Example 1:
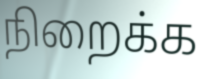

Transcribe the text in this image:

நிறைக்க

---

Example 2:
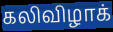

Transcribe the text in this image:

கலிவிழாக்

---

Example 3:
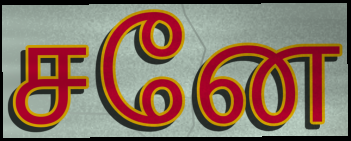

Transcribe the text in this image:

சனே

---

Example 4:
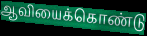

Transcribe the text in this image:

ஆவியைக்கொண்டு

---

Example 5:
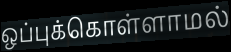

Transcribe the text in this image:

ஒப்புக்கொள்ளாமல்